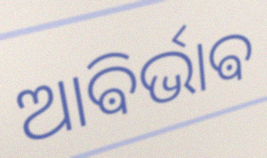
ଆଵିର୍ଭାଵ